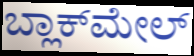
ಬ್ಲಾಕ್‌ಮೇಲ್